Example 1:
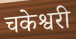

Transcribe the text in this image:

चकेश्वरी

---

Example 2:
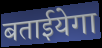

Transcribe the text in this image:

बताईयेगा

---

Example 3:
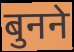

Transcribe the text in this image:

बुनने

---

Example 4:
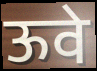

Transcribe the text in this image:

ऊवे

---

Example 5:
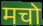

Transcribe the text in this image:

मचो